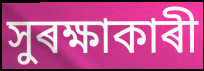
সুৰক্ষাকাৰী